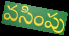
వసింపు